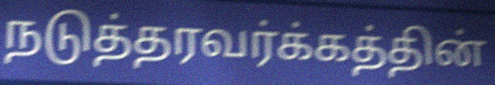
நடுத்தரவர்க்கத்தின்